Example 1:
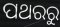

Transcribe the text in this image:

ପଥରରୁ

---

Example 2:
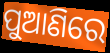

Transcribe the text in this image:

ପୁଆଣିରେ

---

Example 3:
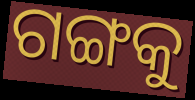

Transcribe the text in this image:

ଗଙ୍ଗକୁ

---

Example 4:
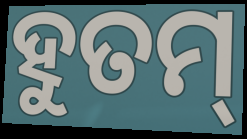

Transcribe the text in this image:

ହୁତମ୍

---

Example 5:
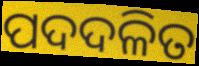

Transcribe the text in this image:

ପଦଦଳିତ